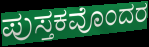
ಪುಸ್ತಕವೊಂದರ